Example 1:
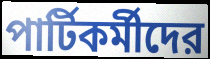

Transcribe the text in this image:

পার্টিকর্মীদের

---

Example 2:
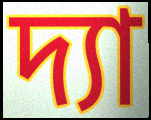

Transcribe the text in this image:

দ্যা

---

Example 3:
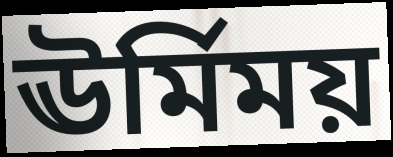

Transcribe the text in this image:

ঊর্মিময়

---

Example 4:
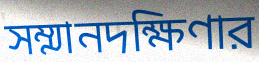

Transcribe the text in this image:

সম্মানদক্ষিণার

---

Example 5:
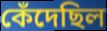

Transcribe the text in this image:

কেঁদেছিল